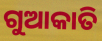
ଗୁଆକାତି